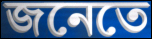
জনেতে